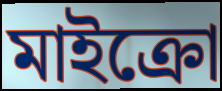
মাইক্রো